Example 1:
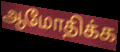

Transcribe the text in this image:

ஆமோதிக்க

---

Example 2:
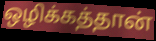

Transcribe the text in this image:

ஒழிக்கத்தான்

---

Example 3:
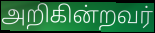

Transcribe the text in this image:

அறிகின்றவர்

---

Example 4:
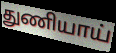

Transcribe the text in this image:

துணியாய்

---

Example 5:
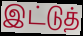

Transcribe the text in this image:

இட்டுத்